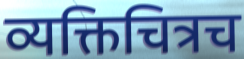
व्यक्तिचित्रच